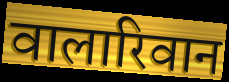
वालारिवान